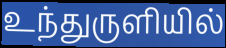
உந்துருளியில்